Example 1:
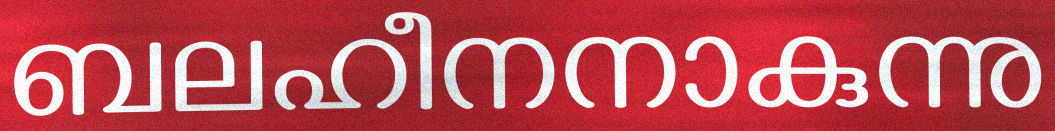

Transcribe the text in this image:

ബലഹീനനാകുന്നു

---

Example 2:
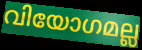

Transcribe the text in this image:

വിയോഗമല്ല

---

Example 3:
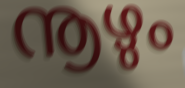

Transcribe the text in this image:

നൂഴും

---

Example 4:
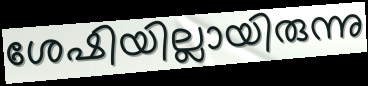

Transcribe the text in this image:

ശേഷിയില്ലായിരുന്നു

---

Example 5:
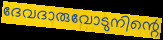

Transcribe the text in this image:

ദേവദാരുവോടുനിന്റെ